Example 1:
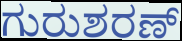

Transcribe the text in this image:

ಗುರುಶರಣ್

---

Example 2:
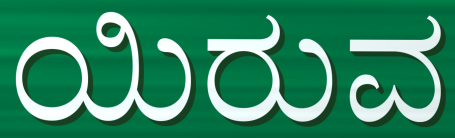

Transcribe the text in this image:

ಯಿರುವ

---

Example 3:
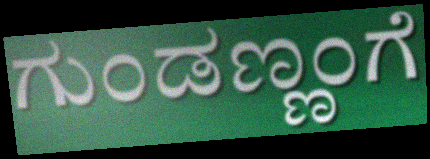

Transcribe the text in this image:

ಗುಂಡಣ್ಣಂಗೆ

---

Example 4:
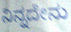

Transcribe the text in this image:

ನಿನ್ನದೇನು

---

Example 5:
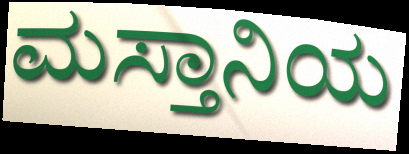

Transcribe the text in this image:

ಮಸ್ತಾನಿಯ